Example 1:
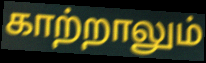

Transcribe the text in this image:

காற்றாலும்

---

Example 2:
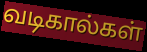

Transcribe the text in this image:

வடிகால்கள்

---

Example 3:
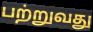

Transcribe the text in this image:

பற்றுவது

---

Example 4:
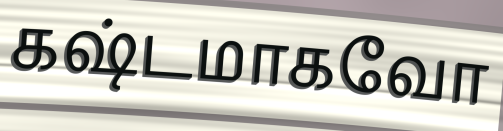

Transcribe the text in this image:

கஷ்டமாகவோ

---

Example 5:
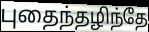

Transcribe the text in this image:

புதைந்தழிந்தே